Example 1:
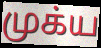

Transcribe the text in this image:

முக்ய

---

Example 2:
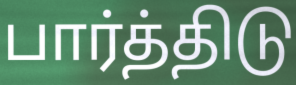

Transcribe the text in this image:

பார்த்திடு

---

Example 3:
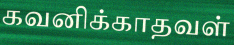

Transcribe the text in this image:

கவனிக்காதவள்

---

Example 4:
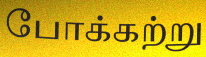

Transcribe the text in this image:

போக்கற்று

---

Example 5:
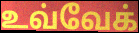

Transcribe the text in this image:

உவ்வேக்